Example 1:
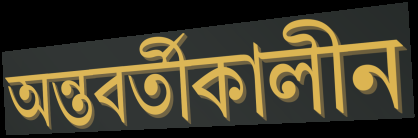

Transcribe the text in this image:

অন্তবর্তীকালীন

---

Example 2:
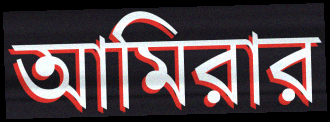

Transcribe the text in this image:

আমিরার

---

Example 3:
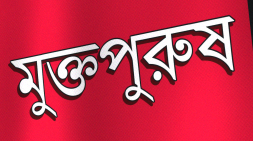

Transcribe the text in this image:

মুক্তপুরুষ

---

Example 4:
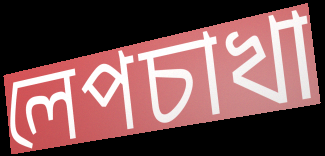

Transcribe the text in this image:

লেপচাখা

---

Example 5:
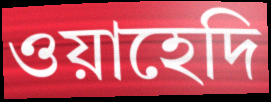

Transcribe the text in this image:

ওয়াহেদি